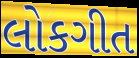
લોકગીત